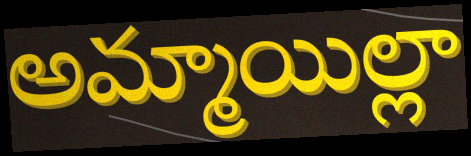
అమ్మాయిల్లా